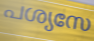
പശ്യസേ